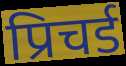
प्रिचर्ड